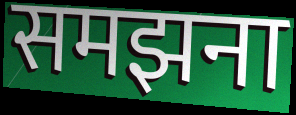
समझना